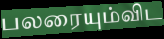
பலரையும்விட